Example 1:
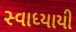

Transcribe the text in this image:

સ્વાધ્યાયી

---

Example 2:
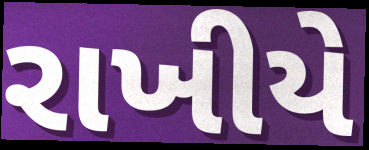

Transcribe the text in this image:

રાખીયે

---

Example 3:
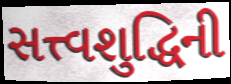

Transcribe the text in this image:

સત્ત્વશુદ્ધિની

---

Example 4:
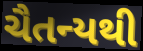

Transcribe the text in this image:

ચૈતન્યથી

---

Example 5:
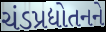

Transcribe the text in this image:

ચંડપ્રદ્યોતનને